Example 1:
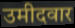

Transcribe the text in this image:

उमीदवार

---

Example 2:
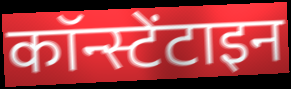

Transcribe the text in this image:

कॉन्स्टेंटाइन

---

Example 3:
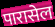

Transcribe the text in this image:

पारासेल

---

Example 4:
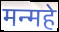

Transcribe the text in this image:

मन्महे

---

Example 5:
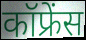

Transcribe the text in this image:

कॉफ्रेंस